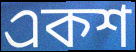
একশ